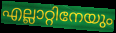
എല്ലാറ്റിനേയും